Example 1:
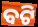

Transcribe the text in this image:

ବଟି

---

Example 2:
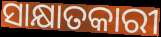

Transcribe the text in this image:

ସାକ୍ଷାତକାରୀ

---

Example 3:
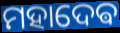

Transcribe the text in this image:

ମହାଦେଵ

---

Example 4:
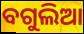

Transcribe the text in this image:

ବଗୁଲିଆ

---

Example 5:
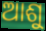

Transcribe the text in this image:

ଆଶୁ